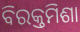
ବିରକ୍ତମିଶା